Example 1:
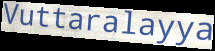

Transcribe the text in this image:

Vuttaralayya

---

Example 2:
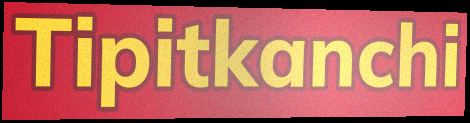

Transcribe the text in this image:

Tipitkanchi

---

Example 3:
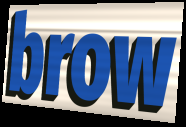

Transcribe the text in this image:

brow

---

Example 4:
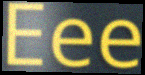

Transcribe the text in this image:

Eee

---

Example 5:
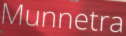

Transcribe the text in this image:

Munnetra